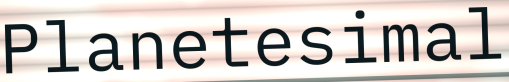
Planetesimal